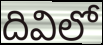
దివిలో